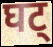
घट्